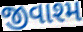
જીવાશ્મ